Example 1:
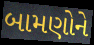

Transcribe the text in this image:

બામણોને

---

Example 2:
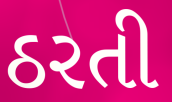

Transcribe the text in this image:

ઠરતી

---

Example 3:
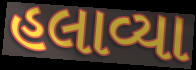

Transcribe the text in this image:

હલાવ્યા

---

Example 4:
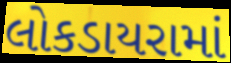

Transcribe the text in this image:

લોકડાયરામાં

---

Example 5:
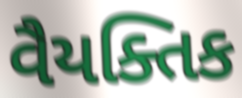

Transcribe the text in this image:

વૈયક્તિક